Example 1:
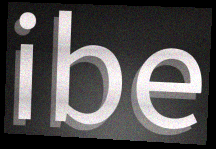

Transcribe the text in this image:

ibe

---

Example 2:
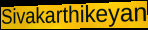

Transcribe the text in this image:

Sivakarthikeyan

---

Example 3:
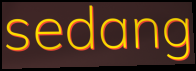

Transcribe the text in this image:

sedang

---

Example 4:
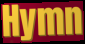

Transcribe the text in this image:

Hymn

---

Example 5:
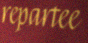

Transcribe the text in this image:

repartee